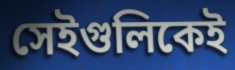
সেইগুলিকেই